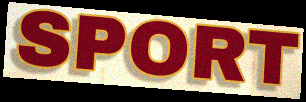
SPORT